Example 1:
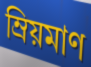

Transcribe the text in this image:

ম্রিয়মাণ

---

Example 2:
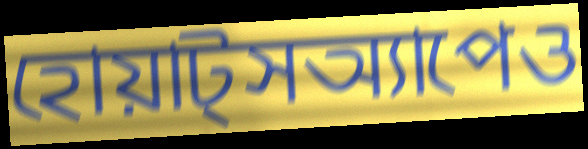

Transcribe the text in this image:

হোয়াট্‌সঅ্যাপেও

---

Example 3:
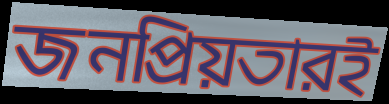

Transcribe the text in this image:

জনপ্রিয়তারই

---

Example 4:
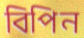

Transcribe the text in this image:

বিপিন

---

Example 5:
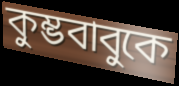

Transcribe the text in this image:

কুম্ভবাবুকে